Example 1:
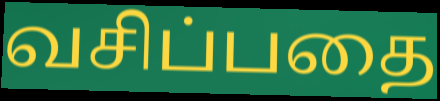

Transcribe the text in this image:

வசிப்பதை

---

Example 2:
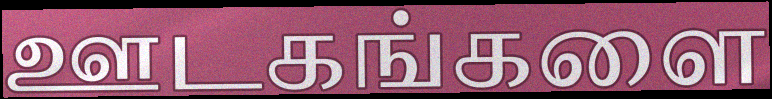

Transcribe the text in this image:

ஊடகங்களை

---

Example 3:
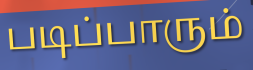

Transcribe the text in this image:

படிப்பாரும்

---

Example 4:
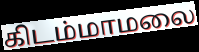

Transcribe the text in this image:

கிடம்மாமலை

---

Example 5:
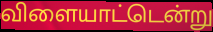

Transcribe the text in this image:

விளையாட்டென்று